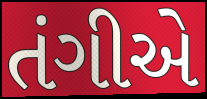
તંગીએ